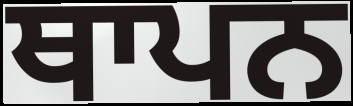
ਥਾਪਨ